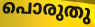
പൊരുതു